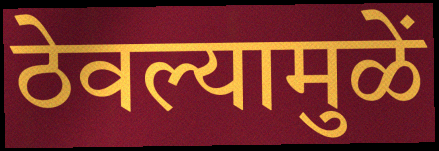
ठेवल्यामुळें